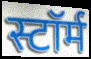
स्टॉर्म